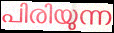
പിരിയുന്ന